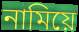
নামিয়ে